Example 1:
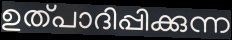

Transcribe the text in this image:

ഉത്പാദിപ്പിക്കുന്ന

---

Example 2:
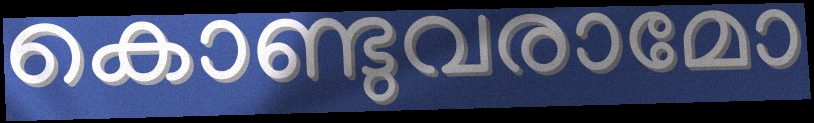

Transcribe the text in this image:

കൊണ്ടുവരാമോ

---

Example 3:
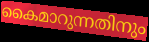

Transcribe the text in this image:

കൈമാറുന്നതിനും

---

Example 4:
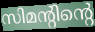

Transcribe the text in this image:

സിമന്റിന്റെ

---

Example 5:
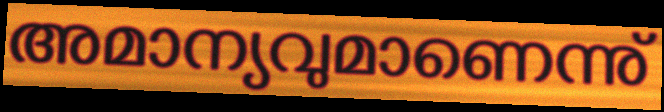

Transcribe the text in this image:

അമാന്യവുമാണെന്നു്